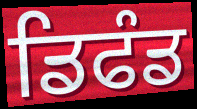
ਡਿਫੰਡ